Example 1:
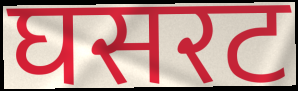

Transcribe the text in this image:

घसरट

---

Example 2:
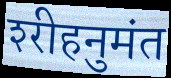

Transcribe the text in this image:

श्रीहनुमंत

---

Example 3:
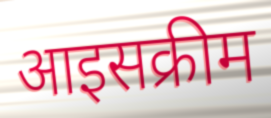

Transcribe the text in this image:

आइसक्रीम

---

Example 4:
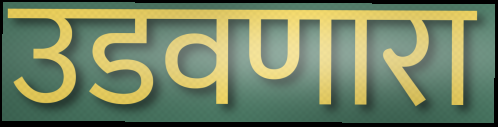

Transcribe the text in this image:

उडवणारा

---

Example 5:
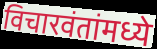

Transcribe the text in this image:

विचारवंतांमध्ये